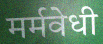
मर्मवेधी